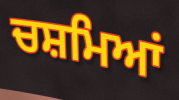
ਚਸ਼ਮਿਆਂ